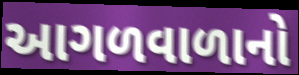
આગળવાળાનો